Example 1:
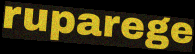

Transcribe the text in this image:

ruparege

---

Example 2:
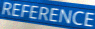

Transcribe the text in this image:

REFERENCE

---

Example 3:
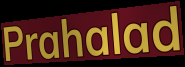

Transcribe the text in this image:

Prahalad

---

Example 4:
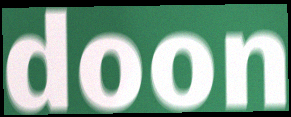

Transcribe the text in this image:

doon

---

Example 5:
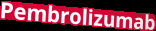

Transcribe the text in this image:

Pembrolizumab